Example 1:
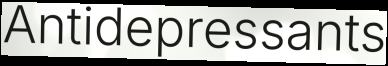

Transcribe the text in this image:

Antidepressants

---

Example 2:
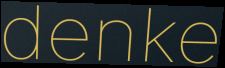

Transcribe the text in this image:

denke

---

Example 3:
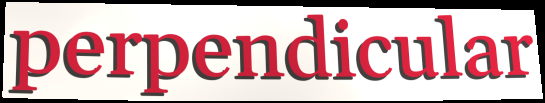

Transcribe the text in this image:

perpendicular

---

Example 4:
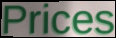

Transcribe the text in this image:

Prices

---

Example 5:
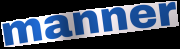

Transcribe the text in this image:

manner